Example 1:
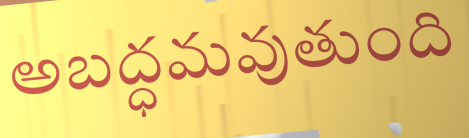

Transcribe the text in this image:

అబద్ధమవుతుంది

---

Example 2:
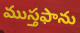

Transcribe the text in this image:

ముస్తఫాను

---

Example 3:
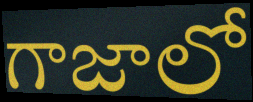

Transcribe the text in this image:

గాజాలో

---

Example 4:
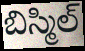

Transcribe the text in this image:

బిస్మిల్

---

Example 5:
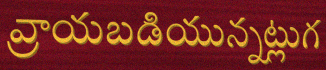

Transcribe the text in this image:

వ్రాయబడియున్నట్లుగ